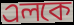
এলকে